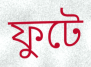
ফুটে